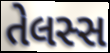
તેલસ્સ